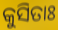
କୁସିତାଃ